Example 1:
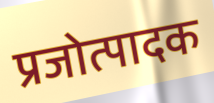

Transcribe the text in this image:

प्रजोत्पादक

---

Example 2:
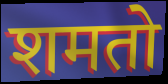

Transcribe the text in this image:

शमतो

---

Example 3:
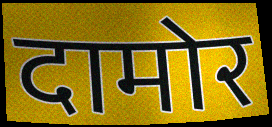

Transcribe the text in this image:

दामोर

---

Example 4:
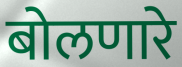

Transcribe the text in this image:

बोलणारे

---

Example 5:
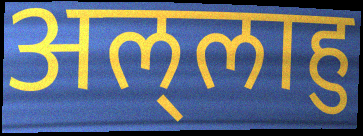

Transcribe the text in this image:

अल्लाहु